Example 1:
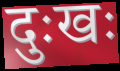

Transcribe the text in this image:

दुःखः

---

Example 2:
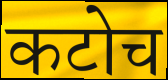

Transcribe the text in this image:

कटोच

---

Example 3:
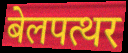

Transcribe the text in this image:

बेलपत्थर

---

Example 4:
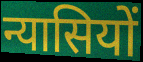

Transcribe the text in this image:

न्यासियों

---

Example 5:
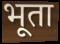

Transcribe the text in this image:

भूता